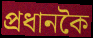
প্ৰধানকৈ